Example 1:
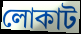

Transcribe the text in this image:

লোকাট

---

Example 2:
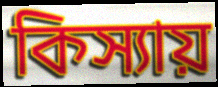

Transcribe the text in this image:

কিস্যায়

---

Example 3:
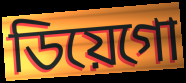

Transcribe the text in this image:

ডিয়েগো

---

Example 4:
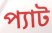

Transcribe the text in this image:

প্যাট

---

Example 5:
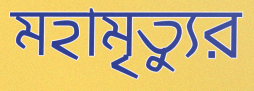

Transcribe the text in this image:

মহামৃত্যুর